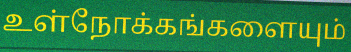
உள்நோக்கங்களையும்